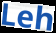
Leh